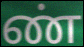
ண்